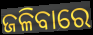
ଜଳିବାରେ